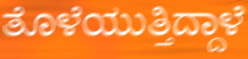
ತೊಳೆಯುತ್ತಿದ್ದಾಳೆ